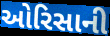
ઓરિસાની